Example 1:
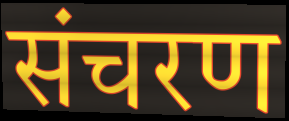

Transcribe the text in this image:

संचरण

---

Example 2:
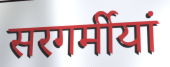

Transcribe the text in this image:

सरगर्मीयां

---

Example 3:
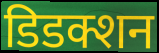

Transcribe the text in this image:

डिडक्शन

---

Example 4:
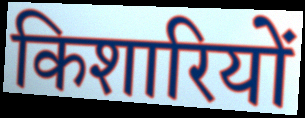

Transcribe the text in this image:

किशारियों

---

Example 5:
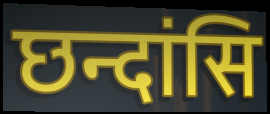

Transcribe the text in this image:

छन्दांसि